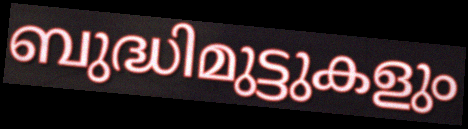
ബുദ്ധിമുട്ടുകളും